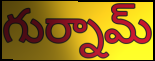
గుర్నామ్